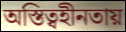
অস্তিত্বহীনতায়